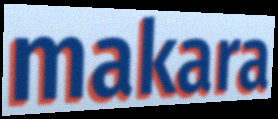
makara